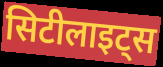
सिटीलाइट्स